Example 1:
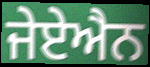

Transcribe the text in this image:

ਜੇਏਐਨ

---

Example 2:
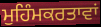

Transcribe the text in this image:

ਮੁਹਿੰਮਕਰਤਾਵਾਂ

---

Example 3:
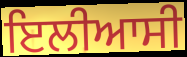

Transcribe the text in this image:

ਇਲੀਆਸੀ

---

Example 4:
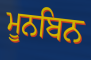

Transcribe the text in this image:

ਮੂਨਬਿਨ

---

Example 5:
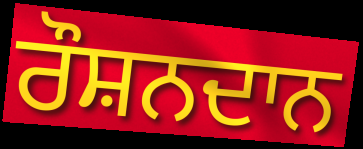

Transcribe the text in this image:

ਰੌਸ਼ਨਦਾਨ